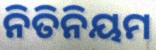
ନିତିନିୟମ